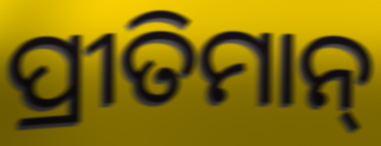
ପ୍ରୀତିମାନ୍